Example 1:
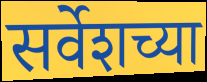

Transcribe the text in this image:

सर्वेशच्या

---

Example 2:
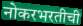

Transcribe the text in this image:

नोकरभरतीची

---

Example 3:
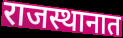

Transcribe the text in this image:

राजस्थानात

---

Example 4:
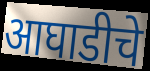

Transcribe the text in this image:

आघाडीचे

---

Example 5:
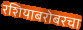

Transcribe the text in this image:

रशियाबरोबरचा